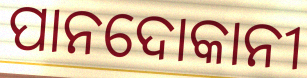
ପାନଦୋକାନୀ